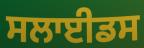
ਸਲਾਈਡਸ